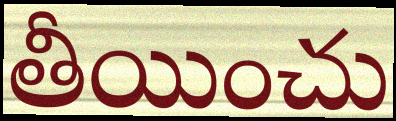
తీయించు